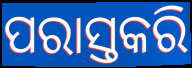
ପରାସ୍ତକରି